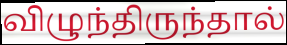
விழுந்திருந்தால்